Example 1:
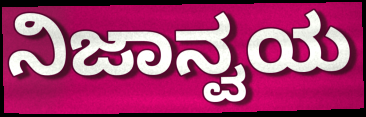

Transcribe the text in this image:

ನಿಜಾನ್ವಯ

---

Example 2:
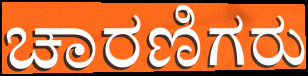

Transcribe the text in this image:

ಚಾರಣಿಗರು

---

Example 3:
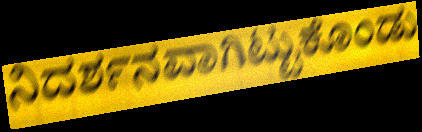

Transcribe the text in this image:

ನಿದರ್ಶನವಾಗಿಟ್ಟುಕೊಂಡು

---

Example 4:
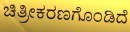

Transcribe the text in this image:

ಚಿತ್ರೀಕರಣಗೊಂಡಿದೆ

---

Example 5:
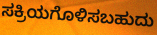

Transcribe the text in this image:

ಸಕ್ರಿಯಗೊಳಿಸಬಹುದು